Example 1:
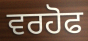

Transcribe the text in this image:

ਵਰਹੋਫ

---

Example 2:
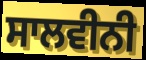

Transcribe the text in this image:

ਸਾਲਵੀਨੀ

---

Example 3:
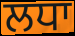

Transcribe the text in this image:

ਲਧਾ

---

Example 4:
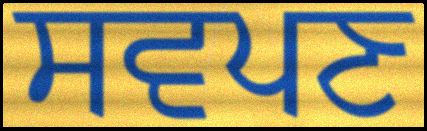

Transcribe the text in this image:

ਸਵਪਣ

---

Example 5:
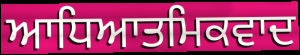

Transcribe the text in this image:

ਆਧਿਆਤਮਿਕਵਾਦ